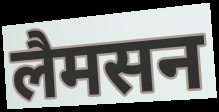
लैमसन